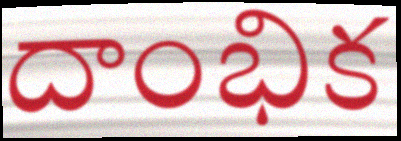
దాంభిక